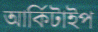
আৰ্কিটাইপ